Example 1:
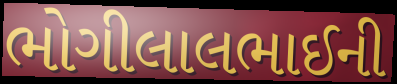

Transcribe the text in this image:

ભોગીલાલભાઈની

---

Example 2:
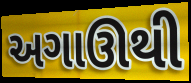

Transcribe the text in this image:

અગાઊથી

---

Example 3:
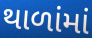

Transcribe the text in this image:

થાળાંમાં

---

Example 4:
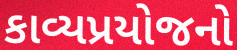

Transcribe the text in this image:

કાવ્યપ્રયોજનો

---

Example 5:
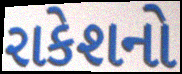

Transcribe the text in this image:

રાકેશનો